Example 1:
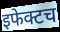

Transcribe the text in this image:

इफेक्टच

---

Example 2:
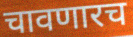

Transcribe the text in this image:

चावणारच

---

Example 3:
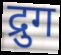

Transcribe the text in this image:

द्रुग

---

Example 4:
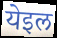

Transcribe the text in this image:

येइल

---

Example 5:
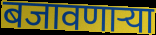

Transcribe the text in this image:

बजावणाऱ्या